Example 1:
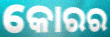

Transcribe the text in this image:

କୋରର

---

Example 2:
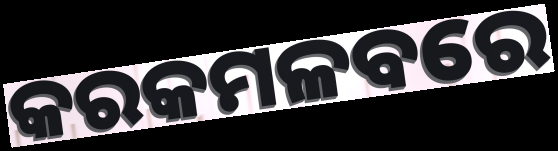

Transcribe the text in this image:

କରକମଳବରେ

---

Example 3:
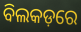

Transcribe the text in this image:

ବିଲକଡ଼ରେ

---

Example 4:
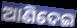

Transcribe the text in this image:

ଆଣିଦେଇ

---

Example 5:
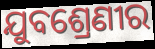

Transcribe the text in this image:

ଯୁବଶ୍ରେଣୀର